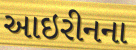
આઇરીનના